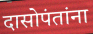
दासोपंतांना